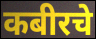
कबीरचे